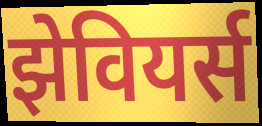
झेवियर्स